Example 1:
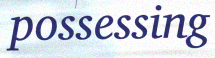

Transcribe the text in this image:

possessing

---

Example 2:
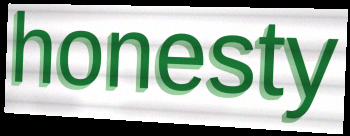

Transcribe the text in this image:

honesty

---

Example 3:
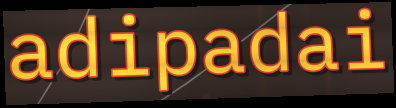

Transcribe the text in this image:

adipadai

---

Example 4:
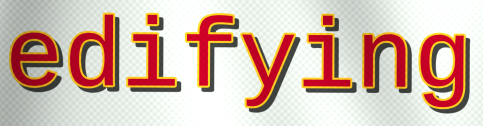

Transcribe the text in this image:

edifying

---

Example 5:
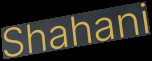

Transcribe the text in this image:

Shahani